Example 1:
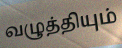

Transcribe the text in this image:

வழுத்தியும்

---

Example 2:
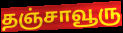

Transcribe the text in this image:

தஞ்சாவூரு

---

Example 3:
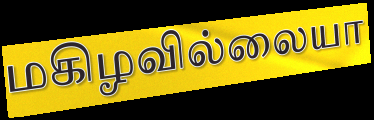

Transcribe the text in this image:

மகிழவில்லையா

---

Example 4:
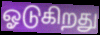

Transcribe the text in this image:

ஓடுகிறது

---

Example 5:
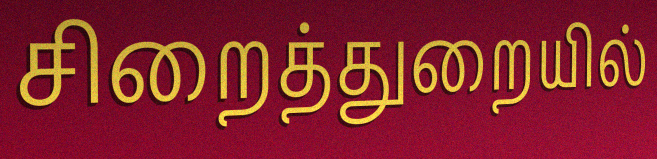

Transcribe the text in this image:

சிறைத்துறையில்